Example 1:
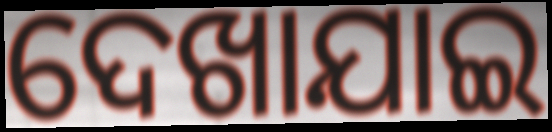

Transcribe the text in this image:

ଦେଖାଯାଇ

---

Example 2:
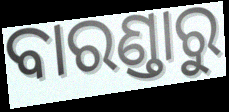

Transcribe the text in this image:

ବାରଣ୍ଡାରୁ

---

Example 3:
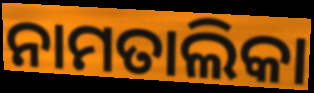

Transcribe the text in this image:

ନାମତାଲିକା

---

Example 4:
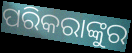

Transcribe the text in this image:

ପରିକରାଙ୍କୁର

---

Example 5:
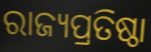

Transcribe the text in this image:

ରାଜ୍ୟପ୍ରତିଷ୍ଠା